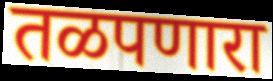
तळपणारा